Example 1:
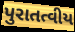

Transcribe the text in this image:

પુરાતત્વીય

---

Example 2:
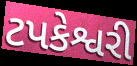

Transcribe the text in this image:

ટપકેશ્વરી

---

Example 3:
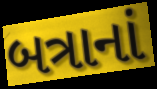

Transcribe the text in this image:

બત્રાનાં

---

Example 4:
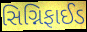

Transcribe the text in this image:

સિગ્નિફાઈડ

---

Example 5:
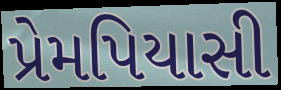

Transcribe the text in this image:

પ્રેમપિયાસી